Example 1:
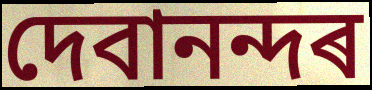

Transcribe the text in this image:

দেবানন্দৰ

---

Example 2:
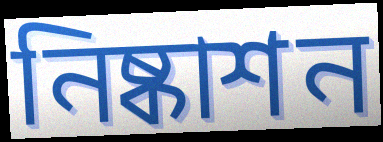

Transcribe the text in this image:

নিষ্কাশন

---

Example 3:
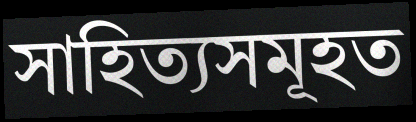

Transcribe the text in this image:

সাহিত্যসমূহত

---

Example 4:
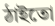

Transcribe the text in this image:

ঠাইতো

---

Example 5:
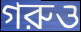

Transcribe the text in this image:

গৰুও